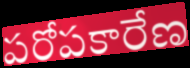
పరోపకారేణ